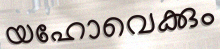
യഹോവെക്കും